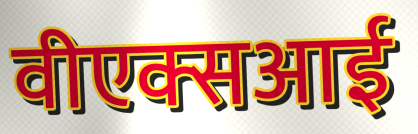
वीएक्सआई